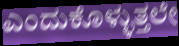
ಎಂದುಕೊಳ್ಳುತ್ತಲೇ